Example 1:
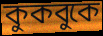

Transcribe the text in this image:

কুকবুকে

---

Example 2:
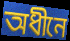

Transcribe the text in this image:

অধীনে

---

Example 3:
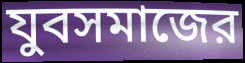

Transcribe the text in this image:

যুবসমাজের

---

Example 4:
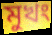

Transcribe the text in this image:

মুখং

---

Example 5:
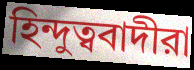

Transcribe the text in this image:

হিন্দুত্ববাদীরা